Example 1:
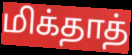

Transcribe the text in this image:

மிக்தாத்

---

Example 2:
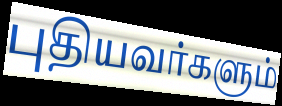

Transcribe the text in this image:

புதியவர்களும்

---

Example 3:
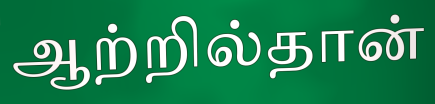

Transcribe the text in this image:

ஆற்றில்தான்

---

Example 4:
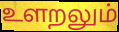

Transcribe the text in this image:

உளறலும்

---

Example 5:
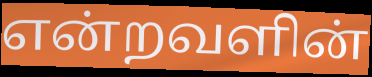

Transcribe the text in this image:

என்றவளின்